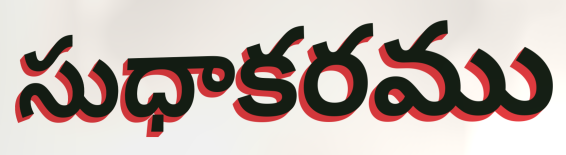
సుధాకరము